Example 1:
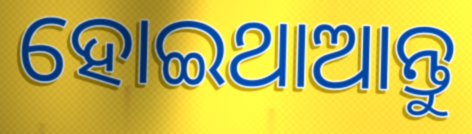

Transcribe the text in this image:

ହୋଇଥାଆନ୍ତୁ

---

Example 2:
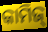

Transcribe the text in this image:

କାମିଜ୍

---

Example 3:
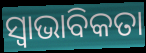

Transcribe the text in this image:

ସ୍ବାଭାବିକତା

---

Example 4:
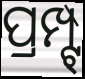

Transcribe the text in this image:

ପ୍ରମ୍ପ୍ଟ୍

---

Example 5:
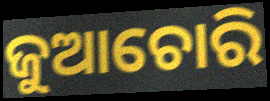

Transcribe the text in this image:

ଜୁଆଚୋରି